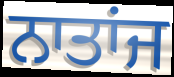
ਨਾਤਾਂਜ